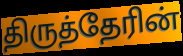
திருத்தேரின்